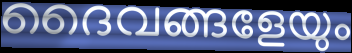
ദൈവങ്ങളേയും